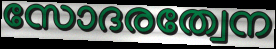
സോദരത്വേന